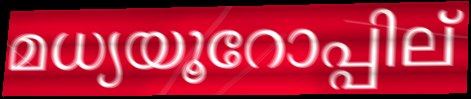
മധ്യയൂറോപ്പില്